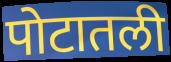
पोटातली